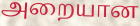
அறையான